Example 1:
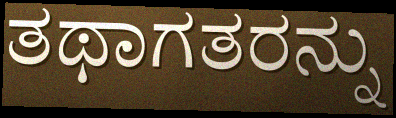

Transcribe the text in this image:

ತಥಾಗತರನ್ನು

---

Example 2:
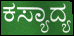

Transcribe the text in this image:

ಕಸ್ಯಾದ್ಯ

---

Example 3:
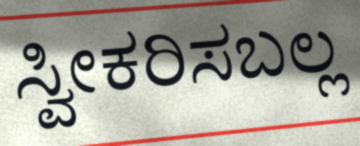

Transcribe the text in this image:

ಸ್ವೀಕರಿಸಬಲ್ಲ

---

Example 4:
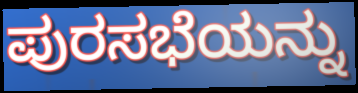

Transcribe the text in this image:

ಪುರಸಭೆಯನ್ನು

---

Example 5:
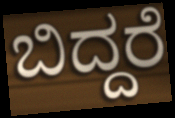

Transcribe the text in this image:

ಬಿದ್ದರೆ